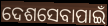
ଦେଶସେବାପାଇଁ